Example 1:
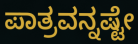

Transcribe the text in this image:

ಪಾತ್ರವನ್ನಷ್ಟೇ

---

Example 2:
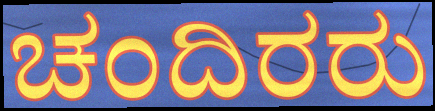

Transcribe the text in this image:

ಚಂದಿರರು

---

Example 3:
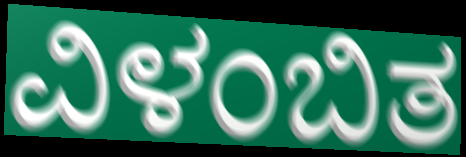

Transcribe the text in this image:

ವಿಳಂಬಿತ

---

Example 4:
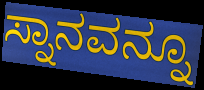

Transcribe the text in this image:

ಸ್ನಾನವನ್ನೂ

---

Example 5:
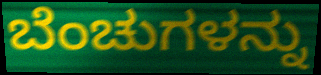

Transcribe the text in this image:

ಬೆಂಚುಗಳನ್ನು